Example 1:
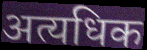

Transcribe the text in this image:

अत्‍यधिक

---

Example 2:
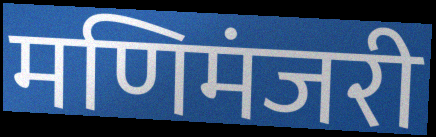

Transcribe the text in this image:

मणिमंजरी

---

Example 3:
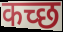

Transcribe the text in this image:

कच्‍छ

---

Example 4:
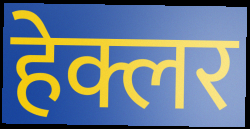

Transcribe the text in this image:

हेक्लर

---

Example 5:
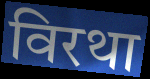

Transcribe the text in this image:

विरथा